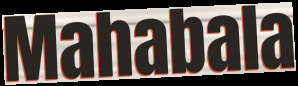
Mahabala